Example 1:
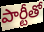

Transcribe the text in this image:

పార్టీతో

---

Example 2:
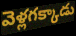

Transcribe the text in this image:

వెళ్లగక్కాడు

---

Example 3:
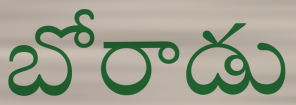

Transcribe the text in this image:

బోరాడు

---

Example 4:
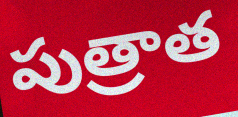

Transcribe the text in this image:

పుత్రాత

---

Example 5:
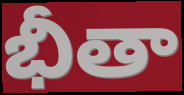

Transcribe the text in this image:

భీతా